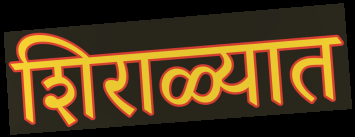
शिराळ्यात